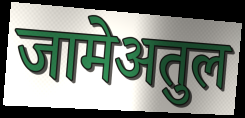
जामेअतुल